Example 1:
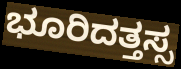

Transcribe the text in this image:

ಭೂರಿದತ್ತಸ್ಸ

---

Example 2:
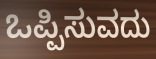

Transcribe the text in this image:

ಒಪ್ಪಿಸುವದು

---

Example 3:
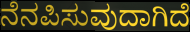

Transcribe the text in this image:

ನೆನಪಿಸುವುದಾಗಿದೆ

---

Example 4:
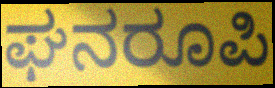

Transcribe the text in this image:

ಘನರೂಪಿ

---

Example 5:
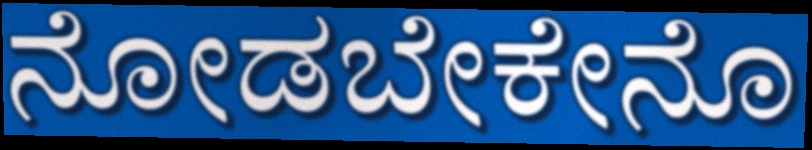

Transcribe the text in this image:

ನೋಡಬೇಕೇನೊ